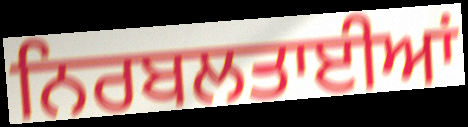
ਨਿਰਬਲਤਾਈਆਂ